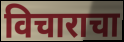
विचाराचा